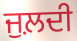
ਜੁਲ਼ਦੀ